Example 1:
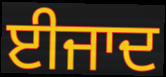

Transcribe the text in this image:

ਈਜਾਦ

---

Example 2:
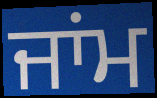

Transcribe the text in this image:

ਜਾਂਮ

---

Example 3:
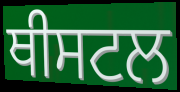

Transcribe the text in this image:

ਥੀਸਟਲ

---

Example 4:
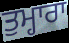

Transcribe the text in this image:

ਤੁਮ੍ਹਾਰਾ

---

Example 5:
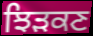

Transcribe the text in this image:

ਝਿੜਕਣ